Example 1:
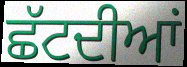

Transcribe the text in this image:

ਛੱਟਦੀਆਂ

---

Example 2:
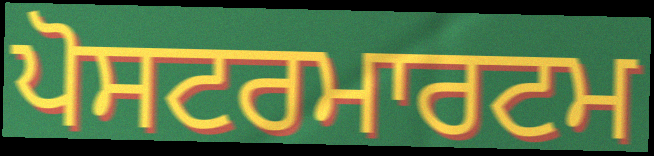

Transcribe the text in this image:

ਪੋਸਟਰਮਾਰਟਮ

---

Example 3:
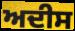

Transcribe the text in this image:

ਅਦੀਸ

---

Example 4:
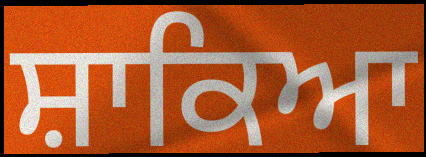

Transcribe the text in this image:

ਸ਼ਾਕਿਆ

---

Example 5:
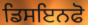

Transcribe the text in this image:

ਡਿਸਇਨਫੋ